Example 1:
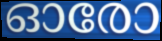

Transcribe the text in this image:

ഓരോ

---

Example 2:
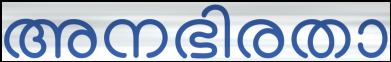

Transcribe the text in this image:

അനഭിരതാ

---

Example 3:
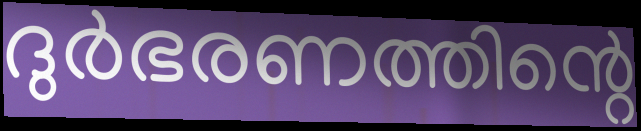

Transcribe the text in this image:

ദുർഭരണത്തിന്റെ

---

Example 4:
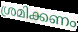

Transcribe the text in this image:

ശ്രമിക്കണം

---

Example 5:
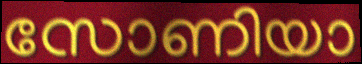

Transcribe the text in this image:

സോണിയാ